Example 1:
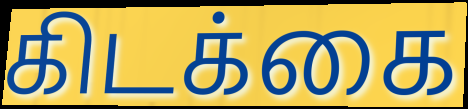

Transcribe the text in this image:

கிடக்கை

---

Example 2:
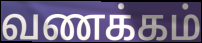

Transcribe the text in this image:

வணக்கம்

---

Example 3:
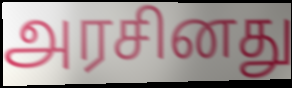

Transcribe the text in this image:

அரசினது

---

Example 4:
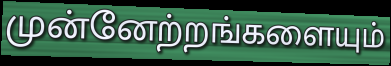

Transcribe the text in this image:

முன்னேற்றங்களையும்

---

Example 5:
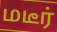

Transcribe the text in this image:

மடீர்